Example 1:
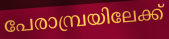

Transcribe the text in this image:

പേരാമ്പ്രയിലേക്ക്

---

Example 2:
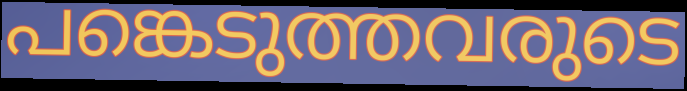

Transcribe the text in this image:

പങ്കെടുത്തവരുടെ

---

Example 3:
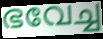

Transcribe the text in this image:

ഭവേച്ച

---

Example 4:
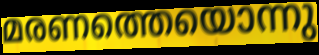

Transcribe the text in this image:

മരണത്തെയൊന്നു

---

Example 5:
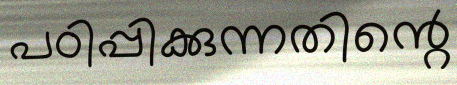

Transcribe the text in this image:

പഠിപ്പിക്കുന്നതിന്റെ